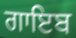
ਗਾਇਬ